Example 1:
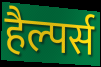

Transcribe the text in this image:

हैल्पर्स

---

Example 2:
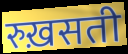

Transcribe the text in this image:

रुख़सती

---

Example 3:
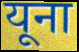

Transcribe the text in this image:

यूना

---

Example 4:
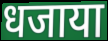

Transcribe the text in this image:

धजाया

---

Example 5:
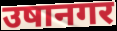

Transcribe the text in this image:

उषानगर